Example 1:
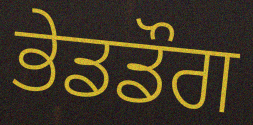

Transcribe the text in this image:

ਭੇਡਡੌਗ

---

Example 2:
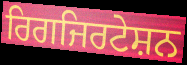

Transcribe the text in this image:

ਰਿਗਜਿਰਟੇਸ਼ਨ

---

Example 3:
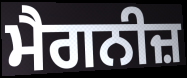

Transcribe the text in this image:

ਮੈਗਨੀਜ਼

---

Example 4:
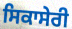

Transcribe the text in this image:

ਸਿਕਾਸੇਰੀ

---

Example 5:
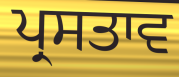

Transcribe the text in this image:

ਪ੍ਰਸਤਾਵ